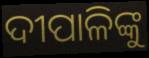
ଦୀପାଳିଙ୍କୁ